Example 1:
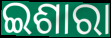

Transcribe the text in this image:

ଇଶାରା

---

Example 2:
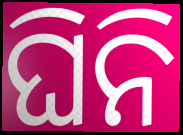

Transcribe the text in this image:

ଘିନି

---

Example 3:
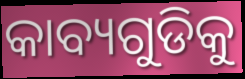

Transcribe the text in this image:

କାବ୍ୟଗୁଡିକୁ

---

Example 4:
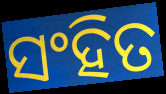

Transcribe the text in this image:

ସଂହିତ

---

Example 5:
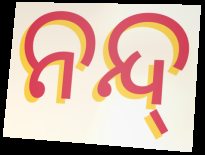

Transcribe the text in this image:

ନନ୍ଦ୍